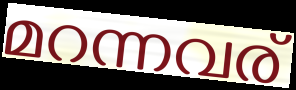
മറന്നവര്